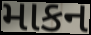
માકન